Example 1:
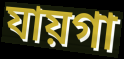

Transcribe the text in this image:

যায়গা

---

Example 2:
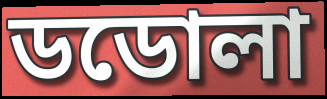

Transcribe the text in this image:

ডডোলা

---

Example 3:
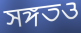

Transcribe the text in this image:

সঙ্গতও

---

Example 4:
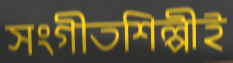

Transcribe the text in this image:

সংগীতশিল্পীই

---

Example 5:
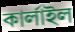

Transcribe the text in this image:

কার্লাইল